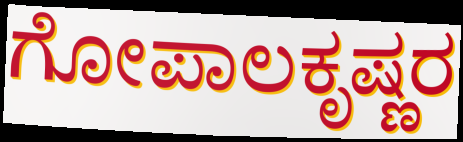
ಗೋಪಾಲಕೃಷ್ಣರ